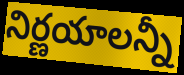
నిర్ణయాలన్నీ